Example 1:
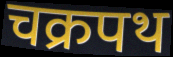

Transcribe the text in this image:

चक्रपथ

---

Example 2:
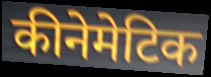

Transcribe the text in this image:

कीनेमेटिक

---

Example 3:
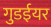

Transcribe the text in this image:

गुडईयर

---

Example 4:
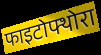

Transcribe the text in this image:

फाइटोफ्थोरा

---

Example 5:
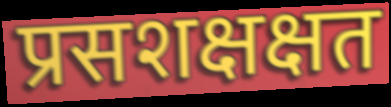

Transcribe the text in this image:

प्रसशक्षक्षत